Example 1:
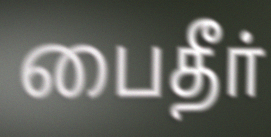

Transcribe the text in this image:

பைதீர்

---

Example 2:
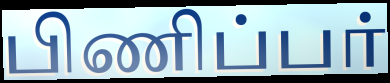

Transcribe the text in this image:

பிணிப்பர்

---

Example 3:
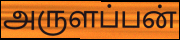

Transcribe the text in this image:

அருளப்பன்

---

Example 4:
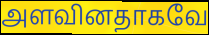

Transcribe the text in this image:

அளவினதாகவே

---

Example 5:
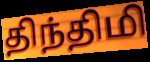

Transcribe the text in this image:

திந்திமி